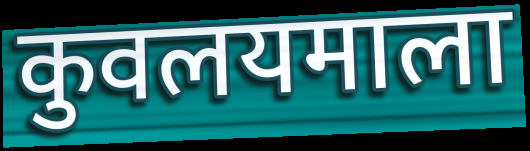
कुवलयमाला